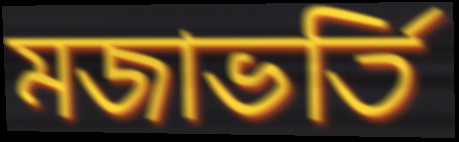
মজাভর্তি